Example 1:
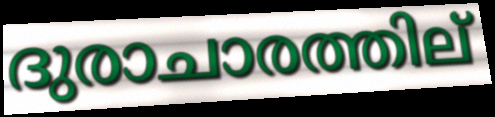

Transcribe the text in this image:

ദുരാചാരത്തില്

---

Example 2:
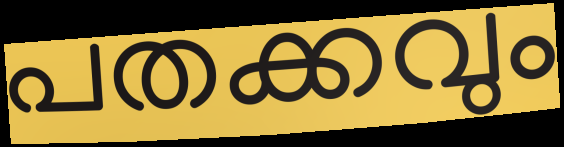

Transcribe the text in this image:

പതക്കവും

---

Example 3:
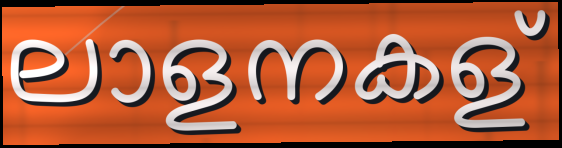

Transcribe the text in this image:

ലാളനകള്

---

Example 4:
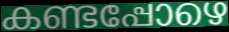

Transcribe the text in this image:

കണ്ടപ്പോഴെ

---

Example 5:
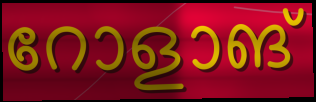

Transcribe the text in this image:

റോളാങ്